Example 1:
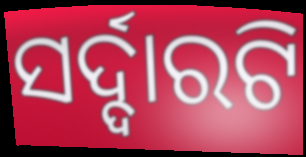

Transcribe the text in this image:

ସର୍ଦ୍ଦାରଟି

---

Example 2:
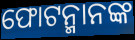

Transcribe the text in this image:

ଫୋଟନ୍ମାନଙ୍କ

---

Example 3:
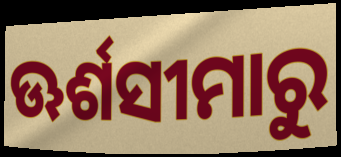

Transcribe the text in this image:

ଊର୍ଶସୀମାରୁ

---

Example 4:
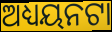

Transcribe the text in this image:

ଅଧ୍ୟୟନଟା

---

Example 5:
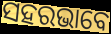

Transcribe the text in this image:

ସହରଭାବେ